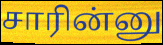
சாரின்னு